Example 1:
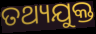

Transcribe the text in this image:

ତଥ୍ୟଯୁକ୍ତ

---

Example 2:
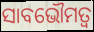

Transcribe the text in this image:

ସାବଭୌମତ୍ୱ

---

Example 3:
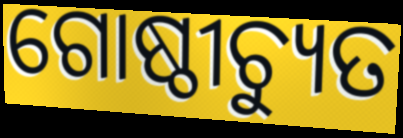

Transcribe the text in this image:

ଗୋଷ୍ଠୀଚ୍ୟୁତ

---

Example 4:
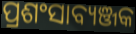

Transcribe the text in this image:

ପ୍ରଶଂସାବ୍ୟଞ୍ଜକ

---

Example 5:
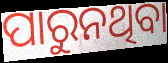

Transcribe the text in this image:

ପାରୁନଥିବା